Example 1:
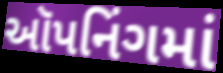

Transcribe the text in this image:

ઑપનિંગમાં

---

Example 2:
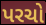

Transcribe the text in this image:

પરચો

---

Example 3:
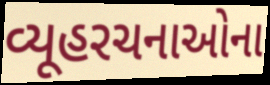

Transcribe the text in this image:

વ્યૂહરચનાઓના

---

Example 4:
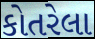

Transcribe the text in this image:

કોતરેલા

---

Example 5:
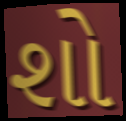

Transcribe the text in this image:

શો